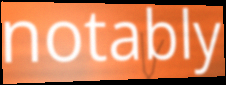
notably